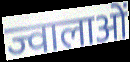
ज्वालाओं